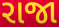
રાજા